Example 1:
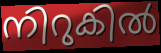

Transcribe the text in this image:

നിറുകിൽ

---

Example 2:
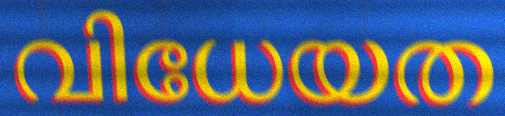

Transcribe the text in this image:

വിധേയത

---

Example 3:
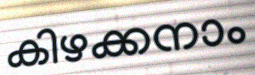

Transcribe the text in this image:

കിഴക്കനാം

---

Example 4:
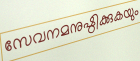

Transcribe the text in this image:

സേവനമനുഷ്ഠിക്കുകയും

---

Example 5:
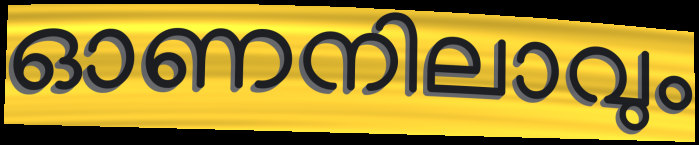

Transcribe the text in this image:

ഓണനിലാവും